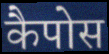
कैपोस